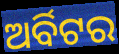
ଅର୍ବିଟର